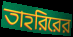
তাহরিরের